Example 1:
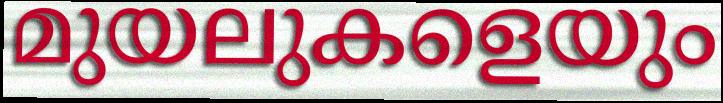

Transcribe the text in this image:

മുയലുകളെയും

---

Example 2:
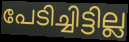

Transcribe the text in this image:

പേടിച്ചിട്ടില്ല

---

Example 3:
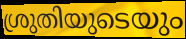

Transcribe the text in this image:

ശ്രുതിയുടെയും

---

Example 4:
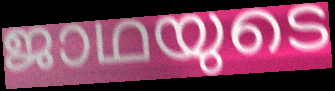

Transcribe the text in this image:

ജാഥയുടെ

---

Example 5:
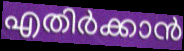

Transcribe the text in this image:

എതിർക്കാൻ